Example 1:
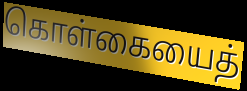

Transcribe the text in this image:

கொள்கையைத்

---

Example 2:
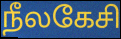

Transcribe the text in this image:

நீலகேசி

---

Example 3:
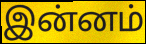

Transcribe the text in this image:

இன்னம்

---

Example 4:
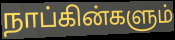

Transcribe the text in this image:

நாப்கின்களும்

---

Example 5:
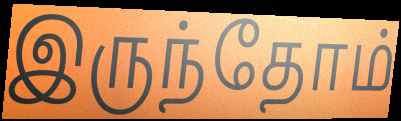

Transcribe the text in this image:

இருந்தோம்